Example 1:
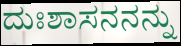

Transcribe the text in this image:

ದುಃಶಾಸನನನ್ನು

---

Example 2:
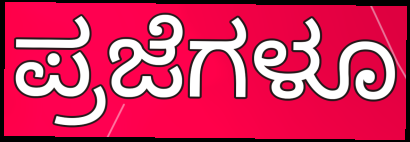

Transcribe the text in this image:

ಪ್ರಜೆಗಳೂ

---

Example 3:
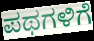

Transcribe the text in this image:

ಪಥಗಳಿಗೆ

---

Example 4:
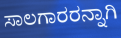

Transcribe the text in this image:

ಸಾಲಗಾರರನ್ನಾಗಿ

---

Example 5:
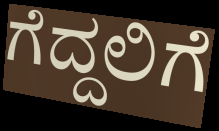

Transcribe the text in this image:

ಗೆದ್ದಲಿಗೆ